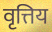
वृत्तिय